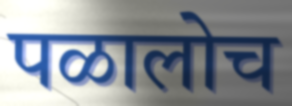
पळालोच